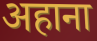
अहाना